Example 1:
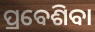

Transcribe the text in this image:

ପ୍ରବେଶିବା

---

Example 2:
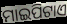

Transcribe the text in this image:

ମାଇପିଟାଏ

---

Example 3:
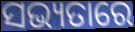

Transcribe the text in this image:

ସଭ୍ୟତାରେ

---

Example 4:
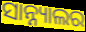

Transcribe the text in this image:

ସାନ୍ନ୍ୟାଲର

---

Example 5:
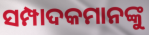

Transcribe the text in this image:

ସମ୍ପାଦକମାନଙ୍କୁ